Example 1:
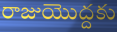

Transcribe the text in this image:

రాజుయొద్దకు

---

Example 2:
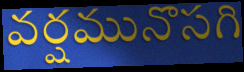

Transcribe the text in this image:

వర్షమునొసగి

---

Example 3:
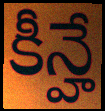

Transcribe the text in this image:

కీన్హే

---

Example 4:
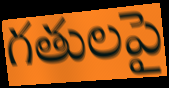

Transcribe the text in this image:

గతులపై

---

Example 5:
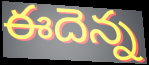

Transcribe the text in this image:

ఈదెన్న